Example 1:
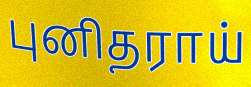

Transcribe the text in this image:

புனிதராய்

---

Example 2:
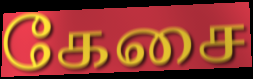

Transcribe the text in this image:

கேசை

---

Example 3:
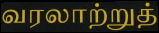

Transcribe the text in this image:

வரலாற்றுத்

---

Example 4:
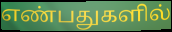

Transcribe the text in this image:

எண்பதுகளில்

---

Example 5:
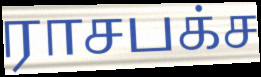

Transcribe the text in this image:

ராசபக்ச